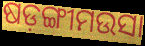
ଷଡ଼ଙ୍ଗୀମଉସା